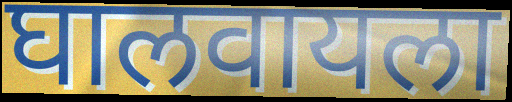
घालवायला